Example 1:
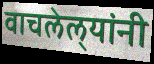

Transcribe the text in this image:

वाचलेल्यांनी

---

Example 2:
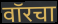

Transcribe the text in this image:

वॉरचा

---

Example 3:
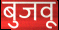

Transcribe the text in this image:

बुजवू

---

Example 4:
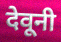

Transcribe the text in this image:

देवूनी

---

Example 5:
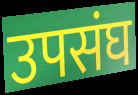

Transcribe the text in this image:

उपसंघ